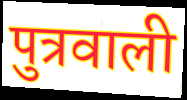
पुत्रवाली